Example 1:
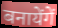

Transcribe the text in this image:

बनायेंगें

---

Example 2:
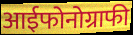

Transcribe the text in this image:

आईफोनोग्राफी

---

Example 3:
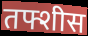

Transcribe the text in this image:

तफ्शीस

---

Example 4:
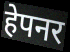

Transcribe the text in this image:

हेपनर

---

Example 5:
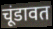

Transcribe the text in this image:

चूंडावत